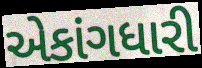
એકાંગધારી